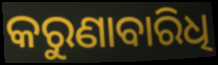
କରୁଣାବାରିଧି